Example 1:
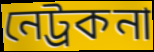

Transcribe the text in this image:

নেট্ৰকনা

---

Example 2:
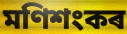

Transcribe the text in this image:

মণিশংকৰ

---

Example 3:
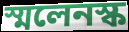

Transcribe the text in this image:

স্মলেনস্ক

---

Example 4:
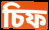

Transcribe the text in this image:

চিফ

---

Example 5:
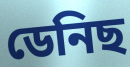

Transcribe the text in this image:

ডেনিছ